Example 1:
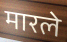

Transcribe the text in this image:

मारले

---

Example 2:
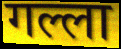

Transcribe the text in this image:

गल्ला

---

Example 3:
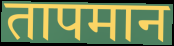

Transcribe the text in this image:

तापमान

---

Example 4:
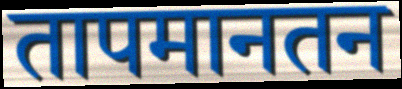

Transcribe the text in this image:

तापमानतन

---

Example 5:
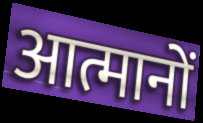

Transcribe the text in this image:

आत्मानों